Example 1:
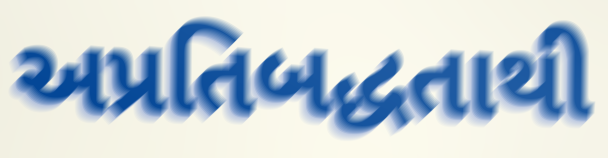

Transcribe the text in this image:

અપ્રતિબદ્ધતાથી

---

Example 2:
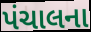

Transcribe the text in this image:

પંચાલના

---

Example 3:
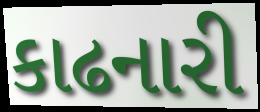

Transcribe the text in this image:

કાઢનારી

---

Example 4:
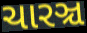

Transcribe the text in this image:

ચારઞ્ચ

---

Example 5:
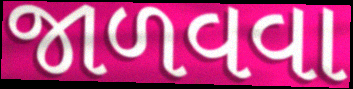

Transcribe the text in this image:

જાળવવા